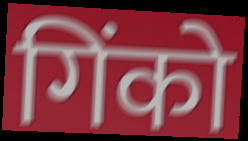
गिंको